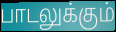
பாடலுக்கும்